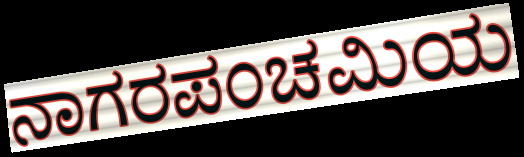
ನಾಗರಪಂಚಮಿಯ